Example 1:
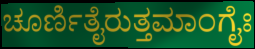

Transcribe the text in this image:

ಚೂರ್ಣಿತೈರುತ್ತಮಾಂಗೈಃ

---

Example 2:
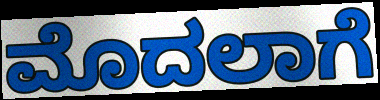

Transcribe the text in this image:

ಮೊದಲಾಗೆ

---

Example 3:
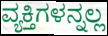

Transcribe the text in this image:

ವ್ಯಕ್ತಿಗಳನ್ನಲ್ಲ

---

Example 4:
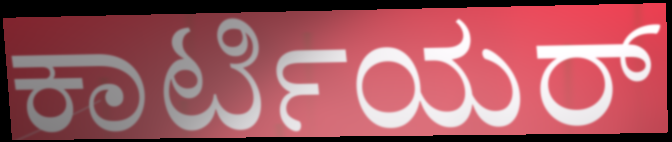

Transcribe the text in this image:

ಕಾರ್ಟಿಯರ್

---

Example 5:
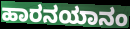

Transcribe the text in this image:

ಹಾರನಯಾನಂ